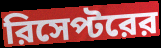
রিসেপ্টরের